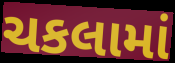
ચકલામાં